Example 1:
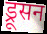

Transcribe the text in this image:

ड्रूसन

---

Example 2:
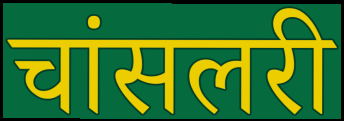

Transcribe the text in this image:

चांसलरी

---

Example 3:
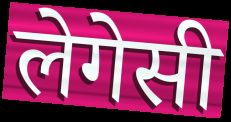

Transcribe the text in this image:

लेगेसी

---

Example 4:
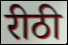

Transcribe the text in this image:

रीठी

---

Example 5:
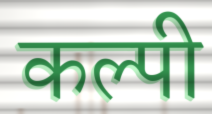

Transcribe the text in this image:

कल्पी